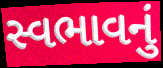
સ્વભાવનું